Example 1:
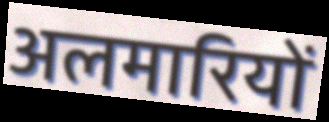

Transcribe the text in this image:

अलमारियों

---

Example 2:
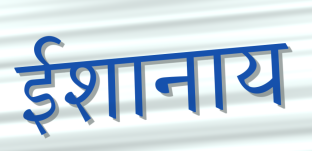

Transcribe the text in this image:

ईशानाय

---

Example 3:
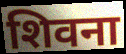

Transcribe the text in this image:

शिवना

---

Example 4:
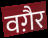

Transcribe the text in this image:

वग़ैर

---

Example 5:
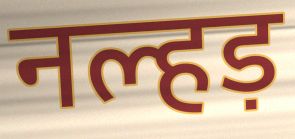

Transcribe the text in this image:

नल्हड़